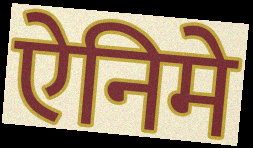
ऐनिमे